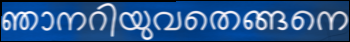
ഞാനറിയുവതെങ്ങനെ